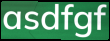
asdfgf